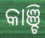
କାଞ୍ଚି